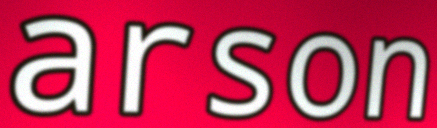
arson